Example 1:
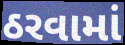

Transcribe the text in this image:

ઠરવામાં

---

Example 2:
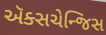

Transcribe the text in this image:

ઍક્સચેન્જિસ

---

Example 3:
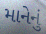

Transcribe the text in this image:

માનેનું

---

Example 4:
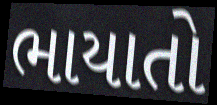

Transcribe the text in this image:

ભાયાતો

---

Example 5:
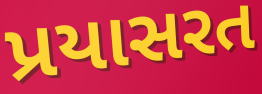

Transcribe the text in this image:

પ્રયાસરત